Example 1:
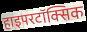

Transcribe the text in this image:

हाइपरटॉक्सिक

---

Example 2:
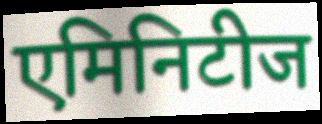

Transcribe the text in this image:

एमिनिटीज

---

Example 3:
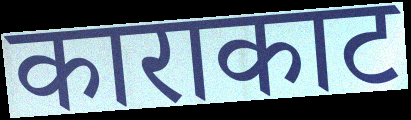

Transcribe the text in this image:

काराकाट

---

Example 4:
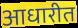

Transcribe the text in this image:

आधारीत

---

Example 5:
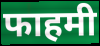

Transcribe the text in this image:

फाहमी